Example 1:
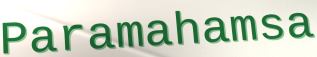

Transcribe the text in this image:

Paramahamsa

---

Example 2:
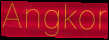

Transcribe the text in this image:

Angkor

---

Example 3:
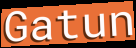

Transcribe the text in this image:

Gatun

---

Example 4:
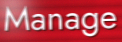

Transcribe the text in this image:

Manage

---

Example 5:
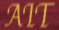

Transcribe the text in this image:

AIT